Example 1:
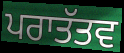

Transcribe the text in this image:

ਪਰਾਤੱਤਵ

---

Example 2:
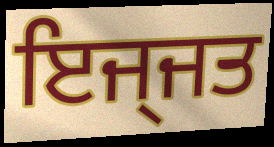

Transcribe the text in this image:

ਇਜ੍ਜਤ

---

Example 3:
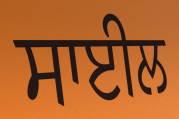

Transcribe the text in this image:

ਸਾਈਲ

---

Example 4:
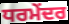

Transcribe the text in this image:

ਧਰਮੇਂਦਰ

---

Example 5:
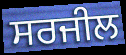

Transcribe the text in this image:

ਸਰਜੀਲ